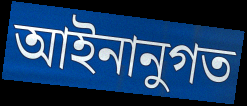
আইনানুগত